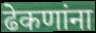
ढेकणांना